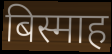
बिस्माह